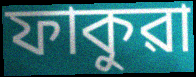
ফাকুৱা